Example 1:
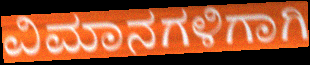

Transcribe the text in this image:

ವಿಮಾನಗಳಿಗಾಗಿ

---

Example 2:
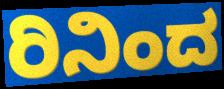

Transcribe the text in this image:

ರಿನಿಂದ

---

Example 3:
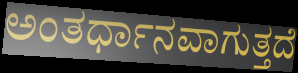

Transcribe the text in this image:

ಅಂತರ್ಧಾನವಾಗುತ್ತದೆ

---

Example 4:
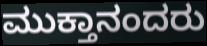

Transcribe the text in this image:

ಮುಕ್ತಾನಂದರು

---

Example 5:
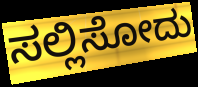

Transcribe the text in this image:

ಸಲ್ಲಿಸೋದು